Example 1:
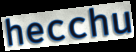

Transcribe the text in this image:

hecchu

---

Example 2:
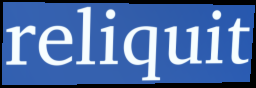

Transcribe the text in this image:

reliquit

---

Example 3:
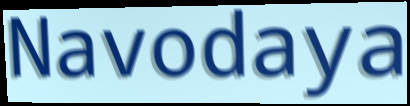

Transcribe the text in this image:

Navodaya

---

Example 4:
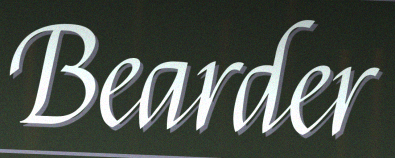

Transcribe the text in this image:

Bearder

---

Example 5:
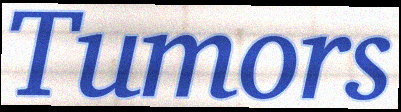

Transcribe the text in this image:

Tumors